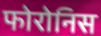
फोरोनिस